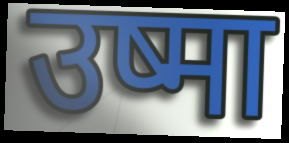
उष्मा